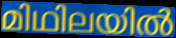
മിഥിലയിൽ